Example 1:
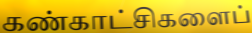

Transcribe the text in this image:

கண்காட்சிகளைப்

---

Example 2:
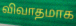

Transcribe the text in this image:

விவாதமாக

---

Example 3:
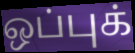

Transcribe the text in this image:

ஒப்புக்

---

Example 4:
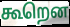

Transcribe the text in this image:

கூறென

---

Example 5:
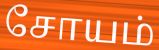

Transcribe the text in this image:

சோயம்